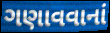
ગણાવવાનાં